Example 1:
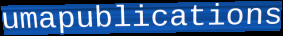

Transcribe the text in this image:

umapublications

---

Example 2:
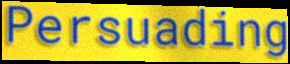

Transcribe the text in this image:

Persuading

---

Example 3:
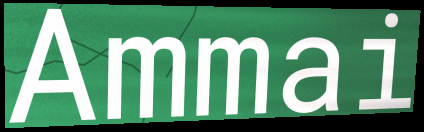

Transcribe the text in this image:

Ammai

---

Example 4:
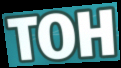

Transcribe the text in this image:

TOH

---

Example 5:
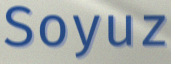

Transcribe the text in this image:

Soyuz